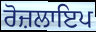
ਰੋਜ਼ਲਾਇਪ